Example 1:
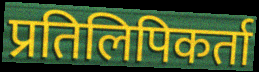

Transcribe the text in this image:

प्रतिलिपिकर्ता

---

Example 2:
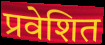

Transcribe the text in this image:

प्रवेशित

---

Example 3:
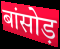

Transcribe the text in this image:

बांसोड़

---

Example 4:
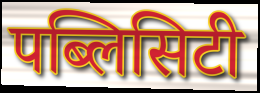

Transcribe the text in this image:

पब्लिसिटी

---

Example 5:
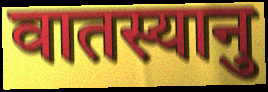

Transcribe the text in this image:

वातस्यानु